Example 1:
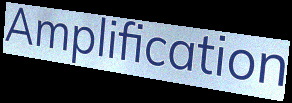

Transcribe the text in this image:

Amplification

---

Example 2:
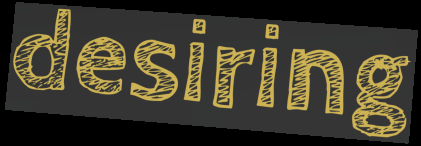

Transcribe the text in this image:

desiring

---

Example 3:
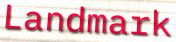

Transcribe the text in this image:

Landmark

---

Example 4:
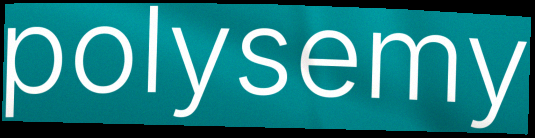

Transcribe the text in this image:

polysemy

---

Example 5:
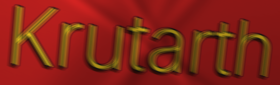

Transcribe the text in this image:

Krutarth